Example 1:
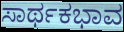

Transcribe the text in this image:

ಸಾರ್ಥಕಭಾವ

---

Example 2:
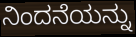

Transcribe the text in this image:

ನಿಂದನೆಯನ್ನು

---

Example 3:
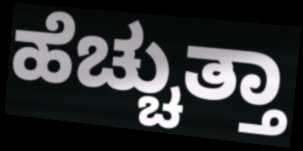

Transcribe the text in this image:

ಹೆಚ್ಚುತ್ತಾ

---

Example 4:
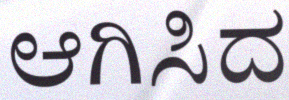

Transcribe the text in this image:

ಆಗಿಸಿದ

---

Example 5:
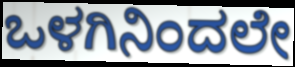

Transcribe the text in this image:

ಒಳಗಿನಿಂದಲೇ